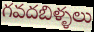
గవదబిళ్ళలు